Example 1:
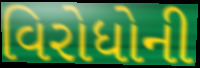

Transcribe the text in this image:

વિરોધોની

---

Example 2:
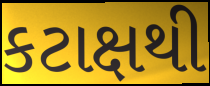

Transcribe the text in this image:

કટાક્ષથી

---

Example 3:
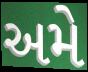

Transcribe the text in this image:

અમે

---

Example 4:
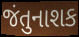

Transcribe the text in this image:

જંતુનાશક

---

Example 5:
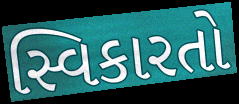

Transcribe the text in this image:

સ્વિકારતો